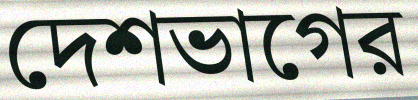
দেশভাগের